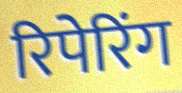
रिपेरिंग